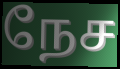
நேச